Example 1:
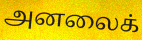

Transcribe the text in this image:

அனலைக்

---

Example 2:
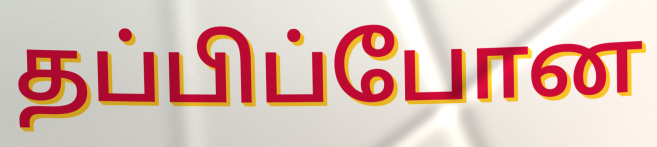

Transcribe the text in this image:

தப்பிப்போன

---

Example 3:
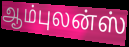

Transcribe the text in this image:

ஆம்புலன்ஸ்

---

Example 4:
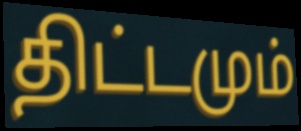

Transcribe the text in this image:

திட்டமும்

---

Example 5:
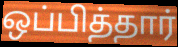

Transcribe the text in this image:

ஒப்பித்தார்